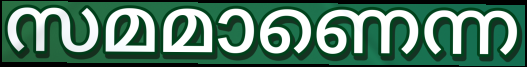
സമമാണെന്ന